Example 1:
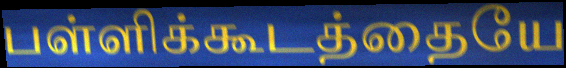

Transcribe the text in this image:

பள்ளிக்கூடத்தையே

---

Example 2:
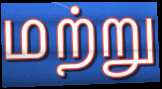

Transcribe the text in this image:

மற்று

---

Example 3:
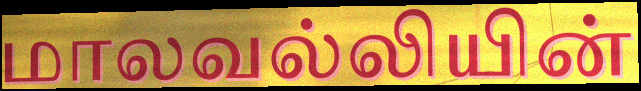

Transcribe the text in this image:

மாலவல்லியின்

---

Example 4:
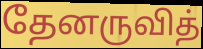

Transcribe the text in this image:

தேனருவித்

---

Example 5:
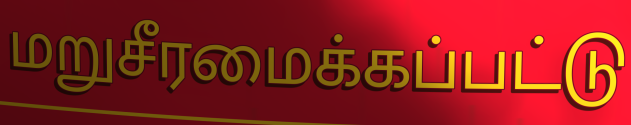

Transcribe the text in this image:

மறுசீரமைக்கப்பட்டு